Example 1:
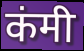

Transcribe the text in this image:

कंमी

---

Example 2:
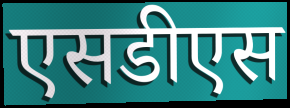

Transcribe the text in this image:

एसडीएस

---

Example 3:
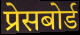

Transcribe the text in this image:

प्रेसबोर्ड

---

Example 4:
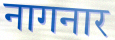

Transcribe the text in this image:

नागनार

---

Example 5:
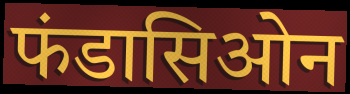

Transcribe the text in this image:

फंडासिओन